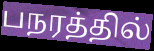
பநரத்தில்